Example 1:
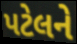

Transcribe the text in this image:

પટેલને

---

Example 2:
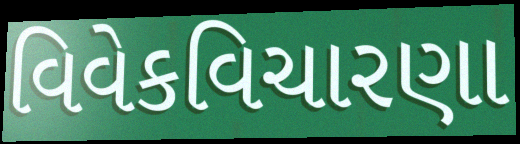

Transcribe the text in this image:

વિવેકવિચારણા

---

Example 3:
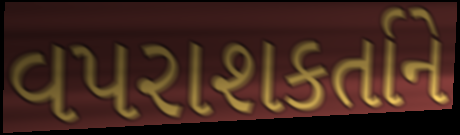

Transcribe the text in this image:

વપરાશકર્તાને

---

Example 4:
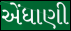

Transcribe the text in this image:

એંધાણી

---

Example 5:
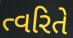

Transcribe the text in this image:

ત્વરિતે